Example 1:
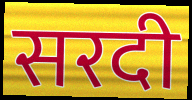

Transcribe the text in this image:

सरदी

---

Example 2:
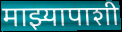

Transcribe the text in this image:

माझ्यापाशी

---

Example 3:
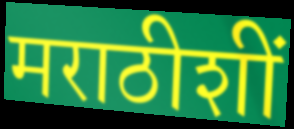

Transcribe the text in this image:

मराठीशीं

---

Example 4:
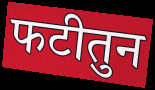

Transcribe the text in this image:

फटीतुन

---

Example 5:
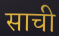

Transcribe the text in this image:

साची